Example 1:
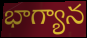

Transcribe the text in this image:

భాగ్యాన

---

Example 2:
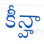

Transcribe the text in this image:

కీన్హా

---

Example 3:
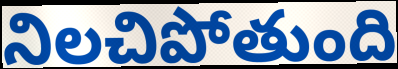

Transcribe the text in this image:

నిలచిపోతుంది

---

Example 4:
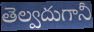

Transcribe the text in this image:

తెల్వదుగానీ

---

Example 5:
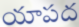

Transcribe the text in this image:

యాపద